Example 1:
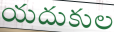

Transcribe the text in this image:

యదుకుల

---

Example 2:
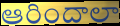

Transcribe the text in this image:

ఆరిందాలా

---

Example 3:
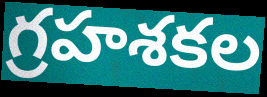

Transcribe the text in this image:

గ్రహశకల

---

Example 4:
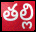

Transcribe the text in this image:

తల్లి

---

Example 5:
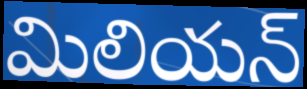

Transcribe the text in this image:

మిలియన్